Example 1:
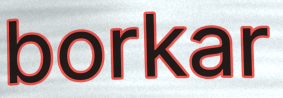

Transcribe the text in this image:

borkar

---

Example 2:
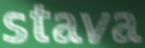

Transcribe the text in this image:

stava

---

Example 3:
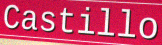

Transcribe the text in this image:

Castillo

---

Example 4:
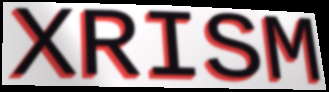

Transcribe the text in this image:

XRISM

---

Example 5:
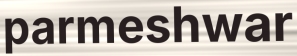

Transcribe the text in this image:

parmeshwar